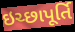
ઇચ્છાપૂર્તિ